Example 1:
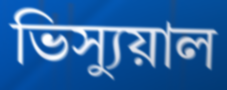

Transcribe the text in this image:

ভিস্যুয়াল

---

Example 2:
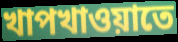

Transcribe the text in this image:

খাপখাওয়াতে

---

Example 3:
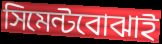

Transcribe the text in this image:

সিমেন্টবোঝাই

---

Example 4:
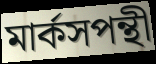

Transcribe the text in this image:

মার্কসপন্থী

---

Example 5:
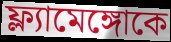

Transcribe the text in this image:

ফ্ল্যামেঙ্গোকে